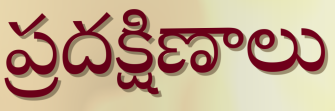
ప్రదక్షిణాలు